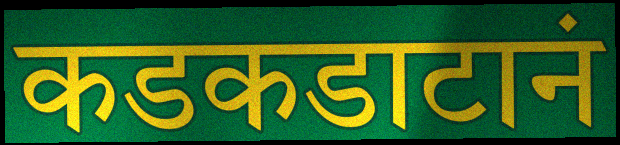
कडकडाटानं